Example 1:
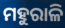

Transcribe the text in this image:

ମହୁରାଳି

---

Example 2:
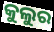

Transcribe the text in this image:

କୁଲୁର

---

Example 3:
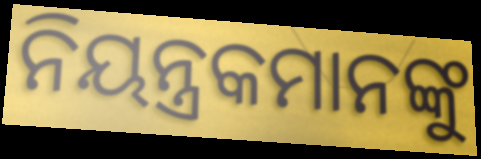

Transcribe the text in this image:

ନିୟନ୍ତ୍ରକମାନଙ୍କୁ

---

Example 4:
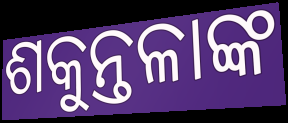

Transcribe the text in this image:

ଶକୁନ୍ତଳାଙ୍କ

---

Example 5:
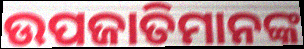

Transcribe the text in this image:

ଉପଜାତିମାନଙ୍କ